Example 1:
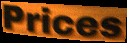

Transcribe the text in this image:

Prices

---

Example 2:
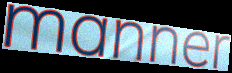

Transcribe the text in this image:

manner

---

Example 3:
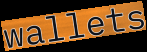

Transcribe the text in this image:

wallets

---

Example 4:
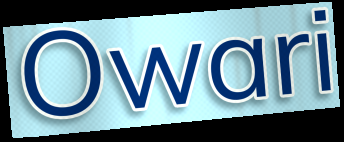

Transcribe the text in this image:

Owari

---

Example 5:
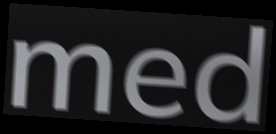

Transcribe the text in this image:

med